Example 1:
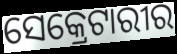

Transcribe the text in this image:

ସେକ୍ରେଟାରୀର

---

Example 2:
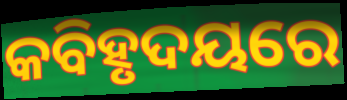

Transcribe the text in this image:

କବିହୃଦୟରେ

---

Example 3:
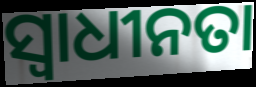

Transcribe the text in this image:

ସ୍ବାଧୀନତା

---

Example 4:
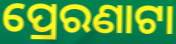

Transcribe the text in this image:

ପ୍ରେରଣାଟା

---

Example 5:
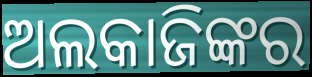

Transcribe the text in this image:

ଅଲକାଜିଙ୍କର